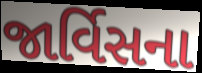
જાર્વિસના